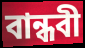
বান্ধবী